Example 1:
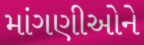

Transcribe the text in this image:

માંગણીઓને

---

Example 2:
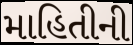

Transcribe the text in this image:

માહિતીની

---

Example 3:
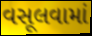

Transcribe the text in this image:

વસૂલવામાં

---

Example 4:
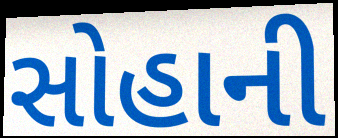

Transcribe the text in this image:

સોહાની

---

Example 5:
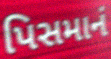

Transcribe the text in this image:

પિસમાનં